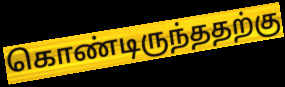
கொண்டிருந்ததற்கு